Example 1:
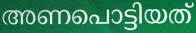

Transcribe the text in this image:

അണപൊട്ടിയത്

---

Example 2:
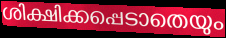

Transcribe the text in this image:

ശിക്ഷിക്കപ്പെടാതെയും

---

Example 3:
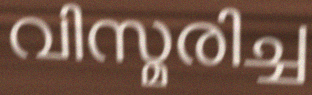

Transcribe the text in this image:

വിസ്മരിച്ച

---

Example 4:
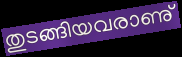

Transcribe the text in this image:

തുടങ്ങിയവരാണു്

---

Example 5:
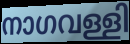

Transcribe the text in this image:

നാഗവള്ളി